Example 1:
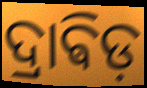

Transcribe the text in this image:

ଦ୍ରାଵିଡ଼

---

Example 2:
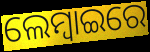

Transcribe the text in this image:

ଲେମ୍ବାଇରେ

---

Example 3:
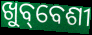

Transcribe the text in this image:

ଖୁବ୍‌ବେଶୀ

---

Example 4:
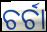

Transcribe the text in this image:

ଚର୍ଚା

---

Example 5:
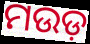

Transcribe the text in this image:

ମଉଡ଼